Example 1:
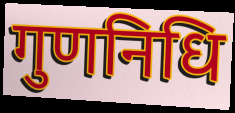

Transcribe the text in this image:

गुणनिधि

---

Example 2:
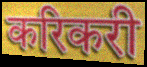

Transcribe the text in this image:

करिकरी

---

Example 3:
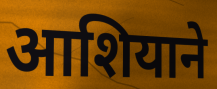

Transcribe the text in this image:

आशियाने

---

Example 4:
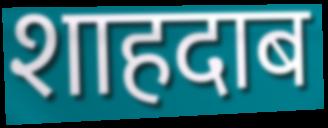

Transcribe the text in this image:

शाहदाब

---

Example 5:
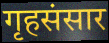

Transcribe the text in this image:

गृहसंसार